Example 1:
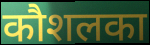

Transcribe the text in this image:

कौशलका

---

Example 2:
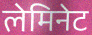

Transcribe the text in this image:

लेमिनेट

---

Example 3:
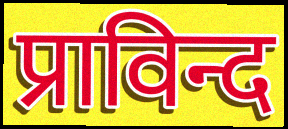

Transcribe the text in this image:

प्राविन्द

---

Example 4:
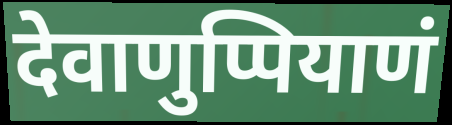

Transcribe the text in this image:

देवाणुप्पियाणं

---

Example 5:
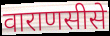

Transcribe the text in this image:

वाराणसीसे